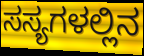
ಸಸ್ಯಗಳಲ್ಲಿನ